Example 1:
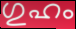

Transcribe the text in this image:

ഗുഹം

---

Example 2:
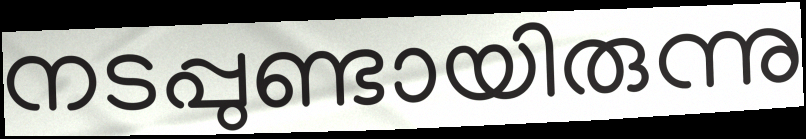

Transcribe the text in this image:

നടപ്പുണ്ടായിരുന്നു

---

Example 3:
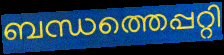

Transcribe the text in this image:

ബന്ധത്തെപ്പറ്റി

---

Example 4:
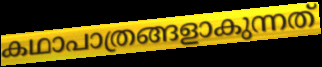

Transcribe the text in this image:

കഥാപാത്രങ്ങളാകുന്നത്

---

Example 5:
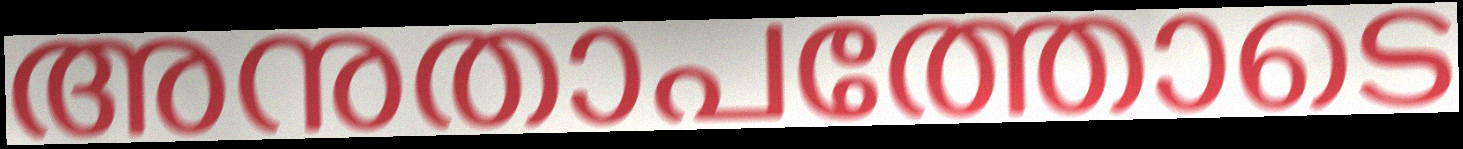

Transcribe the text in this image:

അനുതാപത്തോടെ